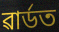
ৱাৰ্ডত